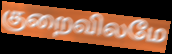
குறைவிலமே